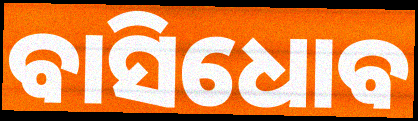
ବାସିଧୋବ